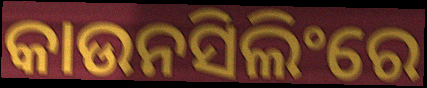
କାଉନସିଲିଂରେ